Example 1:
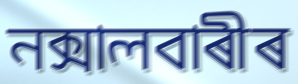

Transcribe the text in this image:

নক্সালবাৰীৰ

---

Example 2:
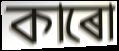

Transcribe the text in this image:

কাৰো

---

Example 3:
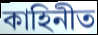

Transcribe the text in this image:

কাহিনীত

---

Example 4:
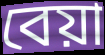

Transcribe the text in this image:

বেয়া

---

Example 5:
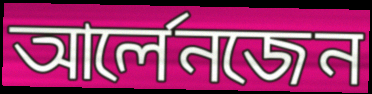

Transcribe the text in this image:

আৰ্লেনজেন